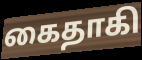
கைதாகி